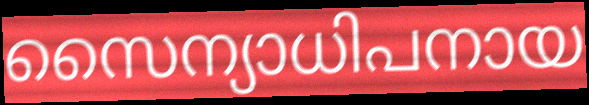
സൈന്യാധിപനായ